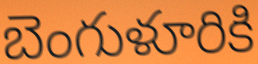
బెంగుళూరికి